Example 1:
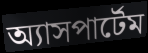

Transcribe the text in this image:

অ্যাসপার্টেম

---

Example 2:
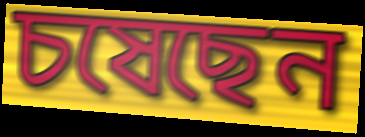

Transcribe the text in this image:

চষেছেন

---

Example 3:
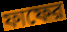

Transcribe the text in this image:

ফাফের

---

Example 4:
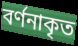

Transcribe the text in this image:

বর্ণনাকৃত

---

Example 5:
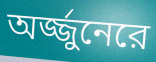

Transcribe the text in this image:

অর্জ্জুনেরে